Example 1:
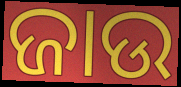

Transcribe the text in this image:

ଜାଉ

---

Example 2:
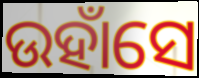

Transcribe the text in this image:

ଉହାଁସେ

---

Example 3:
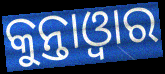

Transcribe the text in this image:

କୁନ୍ତାଓ୍ୱାର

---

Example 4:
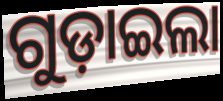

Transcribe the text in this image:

ଗୁଡ଼ାଇଲା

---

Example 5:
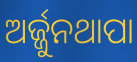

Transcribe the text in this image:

ଅର୍ଜ୍ଜୁନଥାପା